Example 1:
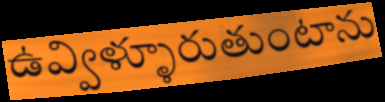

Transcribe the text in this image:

ఉవ్విళ్ళూరుతుంటాను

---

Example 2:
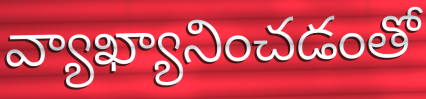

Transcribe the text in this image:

వ్యాఖ్యానించడంతో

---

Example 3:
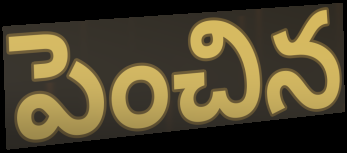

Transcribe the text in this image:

పెంచిన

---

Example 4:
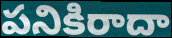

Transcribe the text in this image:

పనికిరాదా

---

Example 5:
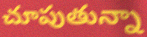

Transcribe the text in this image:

చూపుతున్నా